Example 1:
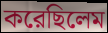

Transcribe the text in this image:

করেছিলেম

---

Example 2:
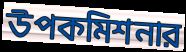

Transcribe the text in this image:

উপকমিশনার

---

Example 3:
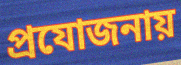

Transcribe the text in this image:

প্রযোজনায়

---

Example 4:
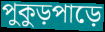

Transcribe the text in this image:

পুকুড়পাড়ে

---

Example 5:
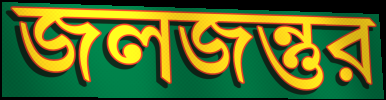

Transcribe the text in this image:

জলজন্তুর